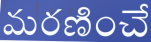
మరణించే